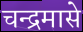
चन्द्रमासे